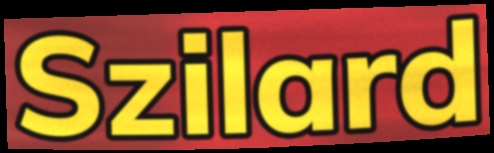
Szilard